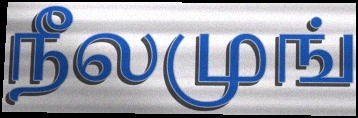
நீலமுங்